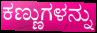
ಕಣ್ಣುಗಳನ್ನು